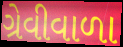
ગ્રેવીવાળા